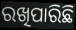
ରଖିପାରିଛି